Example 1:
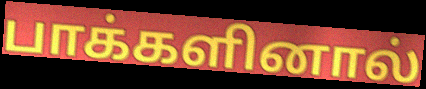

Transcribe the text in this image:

பாக்களினால்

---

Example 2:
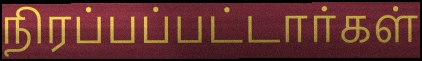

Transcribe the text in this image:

நிரப்பப்பட்டார்கள்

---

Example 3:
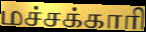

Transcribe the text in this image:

மச்சக்காரி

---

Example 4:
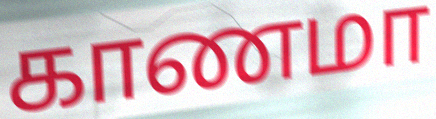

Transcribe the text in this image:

காணமா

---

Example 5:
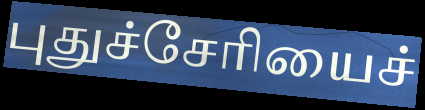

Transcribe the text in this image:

புதுச்சேரியைச்